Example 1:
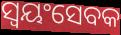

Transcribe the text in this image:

ସ୍ୱୟଂସେବକ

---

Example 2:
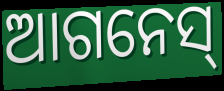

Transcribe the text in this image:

ଆଗନେସ୍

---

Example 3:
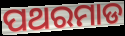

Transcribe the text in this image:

ପଥରମାଡ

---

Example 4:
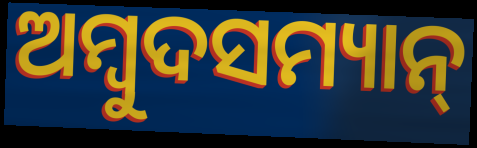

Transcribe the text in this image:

ଅମ୍ୱୁଦସମ୍ୟାନ୍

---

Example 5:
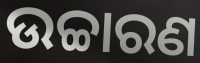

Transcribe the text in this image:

ଉଚ୍ଚାରଣ